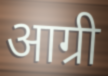
आग्री